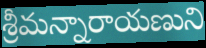
శ్రీమన్నారాయణుని